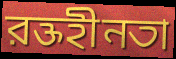
রক্তহীনতা